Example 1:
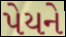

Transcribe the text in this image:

પેયને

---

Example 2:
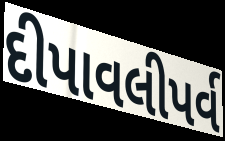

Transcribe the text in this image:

દીપાવલીપર્વ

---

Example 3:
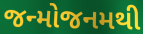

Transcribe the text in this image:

જન્મોજનમથી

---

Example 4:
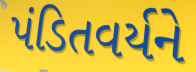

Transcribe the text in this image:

પંડિતવર્યને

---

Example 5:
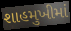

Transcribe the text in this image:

શાહમુખીમાં